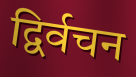
द्विर्वचन